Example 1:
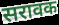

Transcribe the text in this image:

सरावक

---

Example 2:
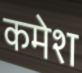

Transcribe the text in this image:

कमेश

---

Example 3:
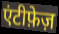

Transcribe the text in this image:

एंटीफ़ेज़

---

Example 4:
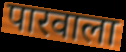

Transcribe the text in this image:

पारवाला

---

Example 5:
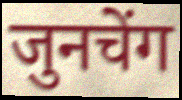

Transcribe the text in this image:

जुनचेंग